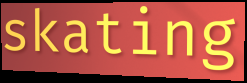
skating